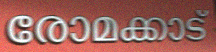
രോമക്കാട്